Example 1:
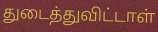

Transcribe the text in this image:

துடைத்துவிட்டாள்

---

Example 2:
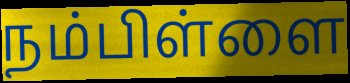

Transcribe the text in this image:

நம்பிள்ளை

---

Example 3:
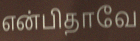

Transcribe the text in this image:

என்பிதாவே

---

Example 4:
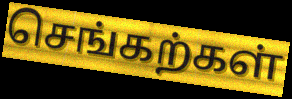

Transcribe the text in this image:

செங்கற்கள்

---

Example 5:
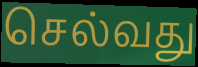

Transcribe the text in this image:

செல்வது